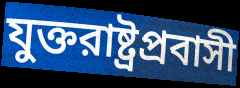
যুক্তরাষ্ট্রপ্রবাসী